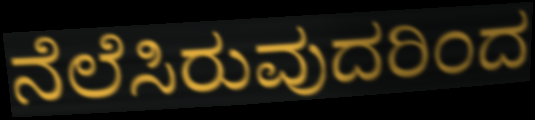
ನೆಲೆಸಿರುವುದರಿಂದ